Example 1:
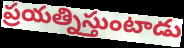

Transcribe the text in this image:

ప్రయత్నిస్తుంటాడు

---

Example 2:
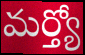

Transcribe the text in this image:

మర్త్యో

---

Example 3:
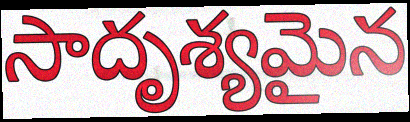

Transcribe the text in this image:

సాదృశ్యమైన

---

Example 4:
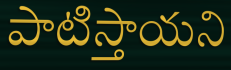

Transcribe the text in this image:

పాటిస్తాయని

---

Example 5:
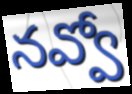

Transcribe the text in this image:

నవ్వో